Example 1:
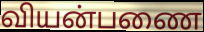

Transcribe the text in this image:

வியன்பணை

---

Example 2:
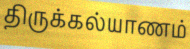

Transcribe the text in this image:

திருக்கல்யாணம்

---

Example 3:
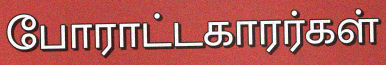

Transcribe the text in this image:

போராட்டகாரர்கள்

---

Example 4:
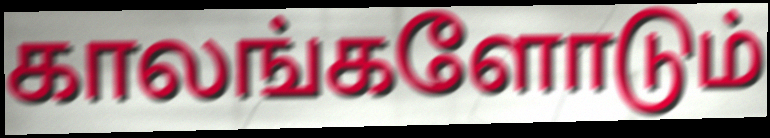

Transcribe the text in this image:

காலங்களோடும்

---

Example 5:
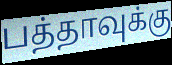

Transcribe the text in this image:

பத்தாவுக்கு